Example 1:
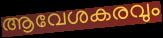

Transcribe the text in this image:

ആവേശകരവും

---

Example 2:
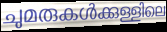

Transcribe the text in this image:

ചുമരുകൾക്കുള്ളിലെ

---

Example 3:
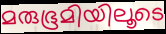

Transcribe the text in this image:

മരുഭൂമിയിലൂടെ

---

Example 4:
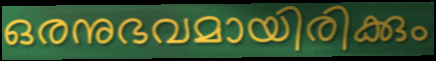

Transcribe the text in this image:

ഒരനുഭവമായിരിക്കും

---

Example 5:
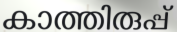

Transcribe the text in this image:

കാത്തിരുപ്പ്